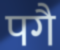
पगै